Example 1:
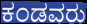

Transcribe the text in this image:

ಕಂಡವರು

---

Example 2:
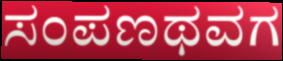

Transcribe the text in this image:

ಸಂಪಣಥವಗ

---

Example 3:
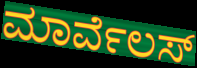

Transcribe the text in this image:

ಮಾರ್ವೆಲಸ್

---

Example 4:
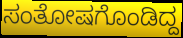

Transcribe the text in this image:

ಸಂತೋಷಗೊಂಡಿದ್ದ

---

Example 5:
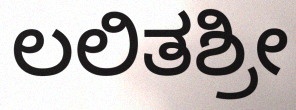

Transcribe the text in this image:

ಲಲಿತಶ್ರೀ